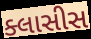
ક્લાસીસ